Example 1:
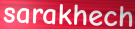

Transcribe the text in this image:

sarakhech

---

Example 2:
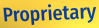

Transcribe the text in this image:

Proprietary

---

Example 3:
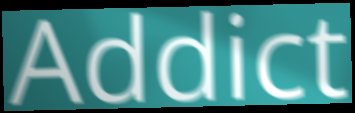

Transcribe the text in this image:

Addict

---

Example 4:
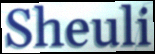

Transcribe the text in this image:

Sheuli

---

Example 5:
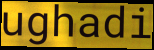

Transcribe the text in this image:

ughadi